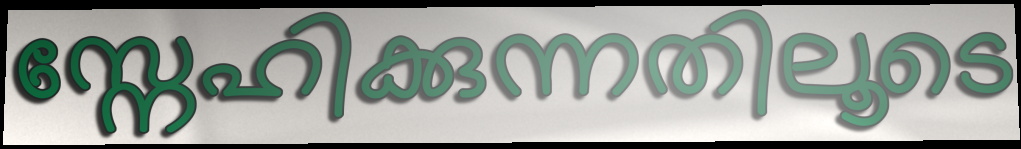
സ്നേഹിക്കുന്നതിലൂടെ